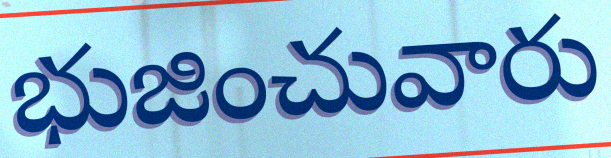
భుజించువారు